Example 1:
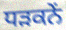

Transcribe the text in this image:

ਧੜਕਨੇਂ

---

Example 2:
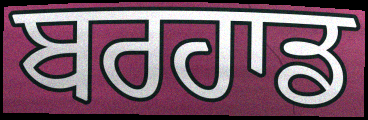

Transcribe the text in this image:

ਬਰਹਾਡ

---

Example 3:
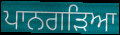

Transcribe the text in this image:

ਪਾਨਗੜਿਆ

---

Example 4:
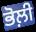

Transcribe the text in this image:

ਭੋਲ਼ੀ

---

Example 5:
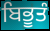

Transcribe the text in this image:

ਬਿਭੂਤੰ